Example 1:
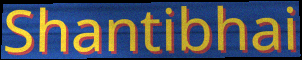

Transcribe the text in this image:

Shantibhai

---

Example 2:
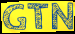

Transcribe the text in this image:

GTN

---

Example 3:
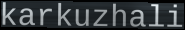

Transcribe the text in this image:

karkuzhali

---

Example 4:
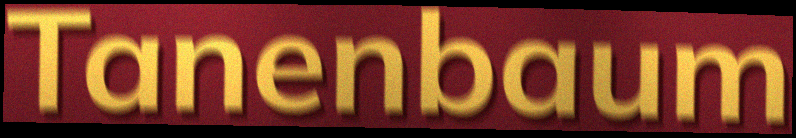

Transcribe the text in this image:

Tanenbaum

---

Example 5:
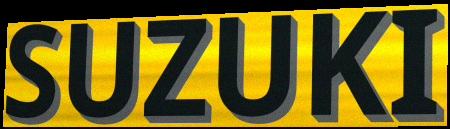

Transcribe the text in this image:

SUZUKI